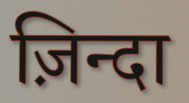
ज़िन्दा